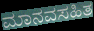
ಮಾನವಸಹಿತ